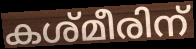
കശ്മീരിന്